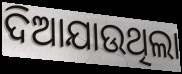
ଦିଆଯାଉଥିଲା